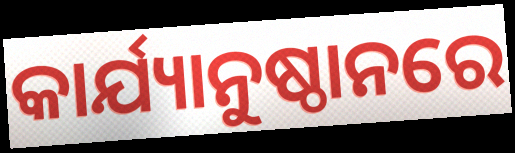
କାର୍ଯ୍ୟାନୁଷ୍ଠାନରେ